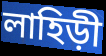
লাহিড়ী